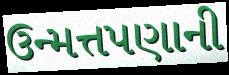
ઉન્મત્તપણાની